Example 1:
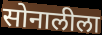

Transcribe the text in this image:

सोनालीला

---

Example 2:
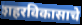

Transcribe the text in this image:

शहरविकासाचे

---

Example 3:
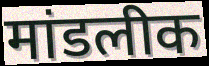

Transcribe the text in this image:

मांडलीक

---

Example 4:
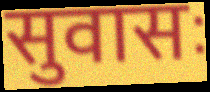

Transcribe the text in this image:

सुवासः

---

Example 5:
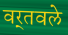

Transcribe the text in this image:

वर्तवले